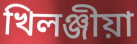
খিলঞ্জীয়া